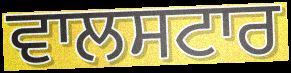
ਵਾਲਸਟਾਰ